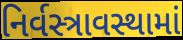
નિર્વસ્ત્રાવસ્થામાં